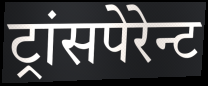
ट्रांसपेरेन्ट